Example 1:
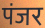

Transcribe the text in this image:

पंजर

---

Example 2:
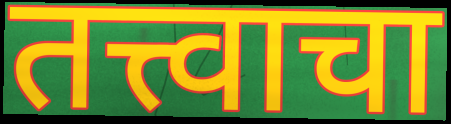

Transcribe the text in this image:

तत्त्वाचा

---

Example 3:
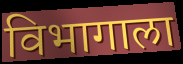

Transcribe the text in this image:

विभागाला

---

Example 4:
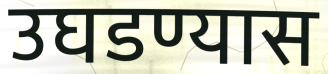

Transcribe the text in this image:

उघडण्यास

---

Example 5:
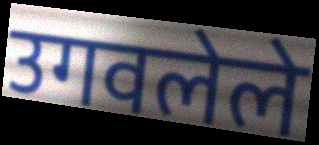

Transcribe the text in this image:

उगवलेले